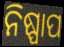
ନିଷ୍ପାପ